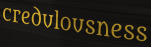
credulousness